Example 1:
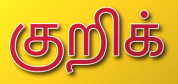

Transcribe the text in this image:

குறிக்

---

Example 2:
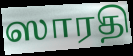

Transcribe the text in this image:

ஸாரதி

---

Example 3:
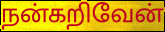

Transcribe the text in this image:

நன்கறிவேன்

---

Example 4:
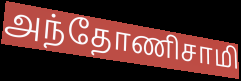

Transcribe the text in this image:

அந்தோணிசாமி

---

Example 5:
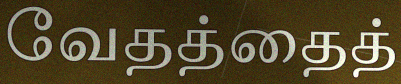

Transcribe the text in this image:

வேதத்தைத்